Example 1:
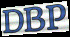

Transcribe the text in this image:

DBP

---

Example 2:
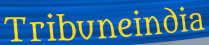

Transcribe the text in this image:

Tribuneindia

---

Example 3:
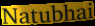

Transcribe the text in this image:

Natubhai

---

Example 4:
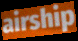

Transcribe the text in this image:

airship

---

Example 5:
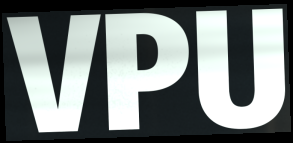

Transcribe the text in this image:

VPU